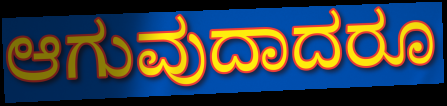
ಆಗುವುದಾದರೂ